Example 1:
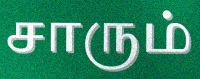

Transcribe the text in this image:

சாரும்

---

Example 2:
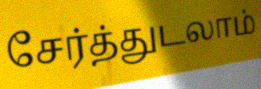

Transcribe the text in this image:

சேர்த்துடலாம்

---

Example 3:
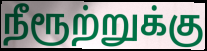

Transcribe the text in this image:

நீரூற்றுக்கு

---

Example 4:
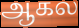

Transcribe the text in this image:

ஆகல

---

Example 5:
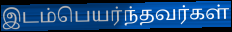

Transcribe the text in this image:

இடம்பெயர்ந்தவர்கள்